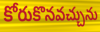
కోరుకొనవచ్చును